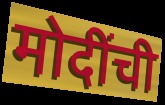
मोदींची